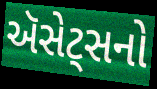
ઍસેટ્સનો